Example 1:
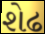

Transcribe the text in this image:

શેઢ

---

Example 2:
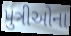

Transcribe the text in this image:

પુત્રીઓના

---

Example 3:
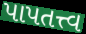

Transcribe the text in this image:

પાપતત્ત્વ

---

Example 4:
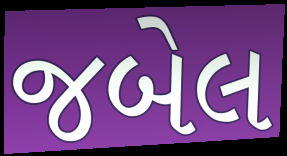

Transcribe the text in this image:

જબેલ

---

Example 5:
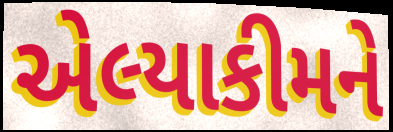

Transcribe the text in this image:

એલ્યાકીમને